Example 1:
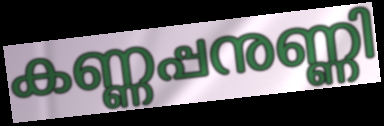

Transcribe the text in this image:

കണ്ണപ്പനുണ്ണി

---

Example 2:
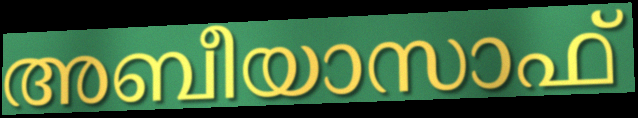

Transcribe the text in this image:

അബീയാസാഫ്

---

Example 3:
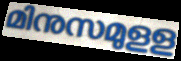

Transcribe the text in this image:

മിനുസമുളള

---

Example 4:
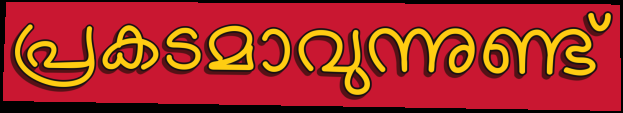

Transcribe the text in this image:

പ്രകടമാവുന്നുണ്ട്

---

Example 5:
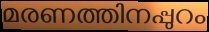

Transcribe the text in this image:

മരണത്തിനപ്പുറം